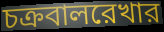
চক্রবালরেখার